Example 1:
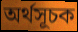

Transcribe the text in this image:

অর্থসূচক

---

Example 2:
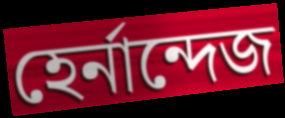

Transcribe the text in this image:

হের্নান্দেজ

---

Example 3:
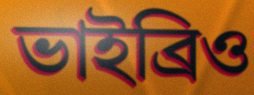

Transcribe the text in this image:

ভাইব্রিও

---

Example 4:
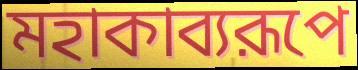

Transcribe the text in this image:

মহাকাব্যরূপে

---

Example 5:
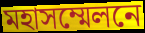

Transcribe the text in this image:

মহাসম্মেলনে